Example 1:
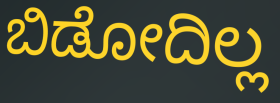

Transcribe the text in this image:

ಬಿಡೋದಿಲ್ಲ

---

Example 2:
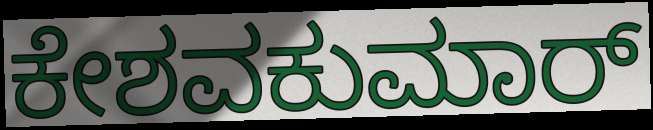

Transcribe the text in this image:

ಕೇಶವಕುಮಾರ್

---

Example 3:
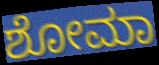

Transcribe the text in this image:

ಶೋಮಾ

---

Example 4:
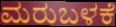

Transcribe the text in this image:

ಮರುಬಳಕೆ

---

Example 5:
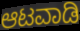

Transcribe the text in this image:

ಆಟವಾಡಿ